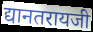
द्यानतरायजी